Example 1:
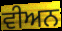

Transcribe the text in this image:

ਵੀਅਨ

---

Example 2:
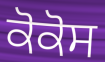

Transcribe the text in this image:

ਕੋਕੋਸ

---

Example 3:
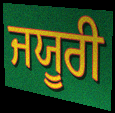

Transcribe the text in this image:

ਜਯੂਰੀ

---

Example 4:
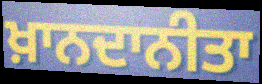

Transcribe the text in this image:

ਖ਼ਾਨਦਾਨੀਤਾ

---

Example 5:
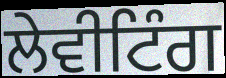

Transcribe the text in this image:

ਲੇਵੀਟਿੰਗ